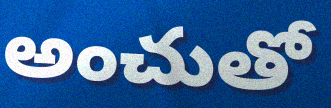
అంచుతో